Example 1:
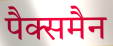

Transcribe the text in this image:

पैक्समैन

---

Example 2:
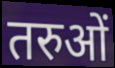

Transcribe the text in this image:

तरुओं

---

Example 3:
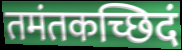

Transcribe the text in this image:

तमंतकच्छिदं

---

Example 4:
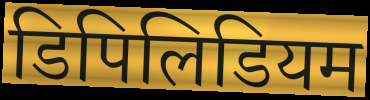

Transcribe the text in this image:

डिपिलिडियम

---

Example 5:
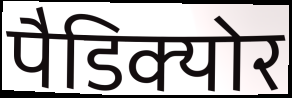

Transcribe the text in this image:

पैडिक्योर